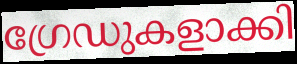
ഗ്രേഡുകളാക്കി